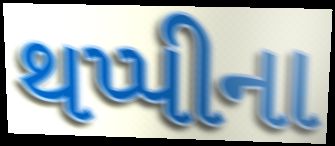
થપ્પીના